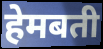
हेमबती